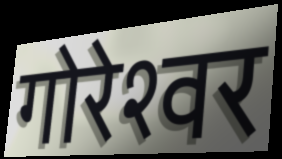
गोरेश्वर